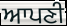
ਆਪਣੀ